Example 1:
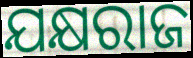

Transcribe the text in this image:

ଯକ୍ଷରାଜ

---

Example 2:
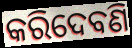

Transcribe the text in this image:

କରିଦେବଣି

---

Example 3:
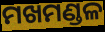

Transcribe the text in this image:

ମଖମଣ୍ଡଳ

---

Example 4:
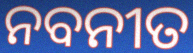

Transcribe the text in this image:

ନବନୀତ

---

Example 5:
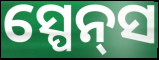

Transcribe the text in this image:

ସ୍ପେନ୍‌ସ